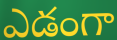
ఎడంగా